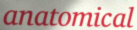
anatomical